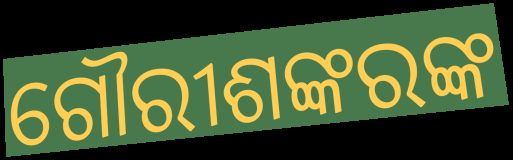
ଗୌରୀଶଙ୍କରଙ୍କ